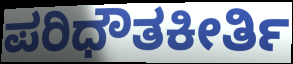
ಪರಿಧೌತಕೀರ್ತಿ